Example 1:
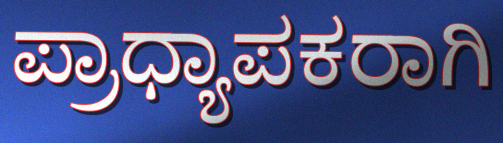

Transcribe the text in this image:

ಪ್ರಾಧ್ಯಾಪಕರಾಗಿ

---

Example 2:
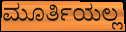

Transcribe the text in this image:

ಮೂರ್ತಿಯಲ್ಲ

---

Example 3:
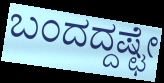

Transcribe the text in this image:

ಬಂದದ್ದಷ್ಟೇ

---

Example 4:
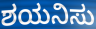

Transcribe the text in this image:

ಶಯನಿಸು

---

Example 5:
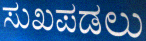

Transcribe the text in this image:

ಸುಖಪಡಲು